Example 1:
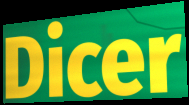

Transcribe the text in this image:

Dicer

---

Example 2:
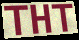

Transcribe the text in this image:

THT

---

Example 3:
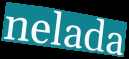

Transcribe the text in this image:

nelada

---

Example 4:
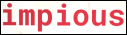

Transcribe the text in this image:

impious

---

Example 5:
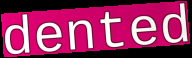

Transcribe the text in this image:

dented